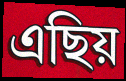
এছিয়